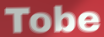
Tobe